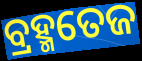
ବ୍ରହ୍ମତେଜ